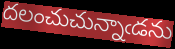
దలంచుచున్నాఁడను